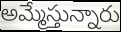
అమ్మేస్తున్నారు